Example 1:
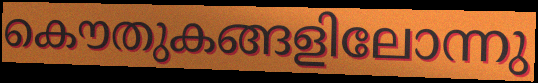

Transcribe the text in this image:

കൌതുകങ്ങളിലോന്നു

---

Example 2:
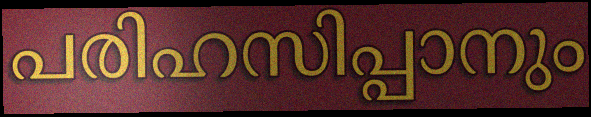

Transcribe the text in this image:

പരിഹസിപ്പാനും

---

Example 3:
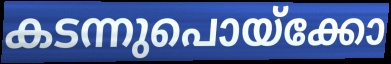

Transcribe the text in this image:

കടന്നുപൊയ്ക്കോ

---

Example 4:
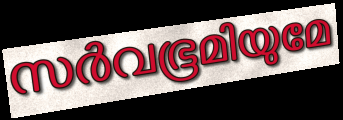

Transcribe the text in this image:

സർവഭൂമിയുമേ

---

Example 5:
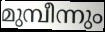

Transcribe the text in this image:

മുമ്പീന്നും